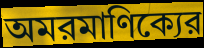
অমরমাণিক্যের